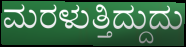
ಮರಳುತ್ತಿದ್ದುದು